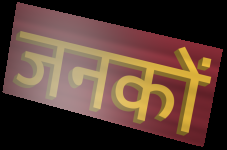
जनकों